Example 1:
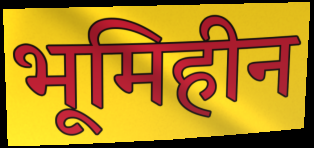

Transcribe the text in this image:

भूमिहीन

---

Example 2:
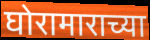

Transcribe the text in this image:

घोरामाराच्या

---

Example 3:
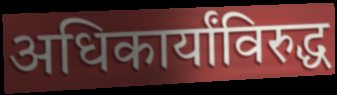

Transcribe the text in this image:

अधिकार्यांविरुद्ध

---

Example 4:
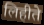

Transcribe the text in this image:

लिहीते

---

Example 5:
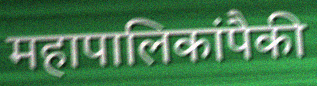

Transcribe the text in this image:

महापालिकांपैकी